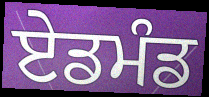
ਏਡਮੰਡ